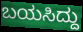
ಬಯಸಿದ್ದು